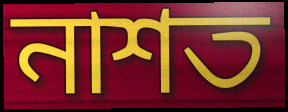
নাশত